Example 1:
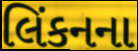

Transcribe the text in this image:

લિંકનના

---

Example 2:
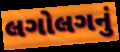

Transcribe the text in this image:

લગોલગનું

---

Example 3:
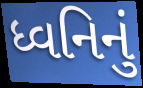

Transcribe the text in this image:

ધ્વનિનું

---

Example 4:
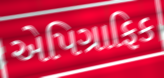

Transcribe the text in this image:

એપિગ્રાફિક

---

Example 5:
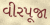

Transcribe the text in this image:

વીરપૂજા